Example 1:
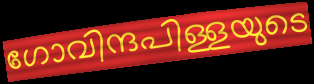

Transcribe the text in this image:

ഗോവിന്ദപിള്ളയുടെ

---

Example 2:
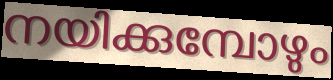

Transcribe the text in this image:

നയിക്കുമ്പോഴും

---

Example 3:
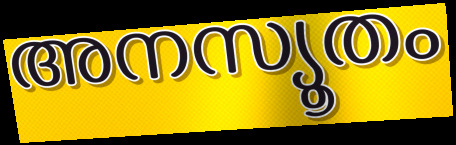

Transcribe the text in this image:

അനസ്യൂതം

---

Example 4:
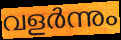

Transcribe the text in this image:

വളർന്നും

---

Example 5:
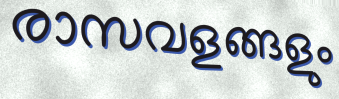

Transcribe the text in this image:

രാസവളങ്ങളും